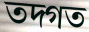
তদ্গত